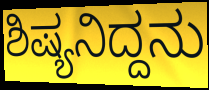
ಶಿಷ್ಯನಿದ್ದನು